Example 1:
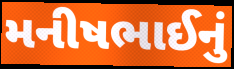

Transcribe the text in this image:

મનીષભાઈનું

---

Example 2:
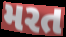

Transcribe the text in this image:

મરત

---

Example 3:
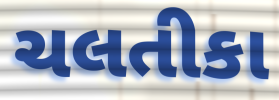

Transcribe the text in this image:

ચલતીકા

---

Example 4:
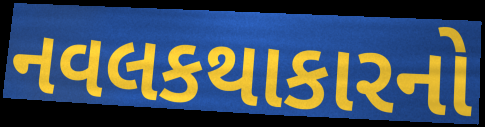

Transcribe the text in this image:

નવલકથાકારનો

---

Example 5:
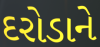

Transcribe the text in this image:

દરોડાને